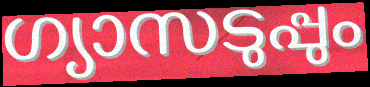
ഗ്യാസടുപ്പും